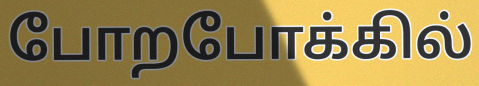
போறபோக்கில்